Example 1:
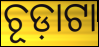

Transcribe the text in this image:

ଚୂଡ଼ାଟା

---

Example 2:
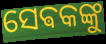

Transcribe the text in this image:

ସେଵକଙ୍କୁ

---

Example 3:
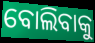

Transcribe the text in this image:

ବୋଲିବାକୁ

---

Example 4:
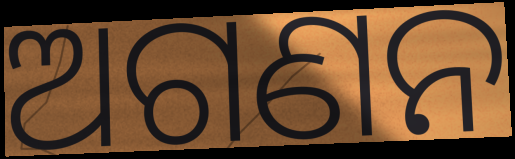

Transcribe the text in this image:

ଅଗଣନ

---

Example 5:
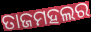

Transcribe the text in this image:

ତାଜମହଲର